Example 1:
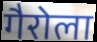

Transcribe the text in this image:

गैरोला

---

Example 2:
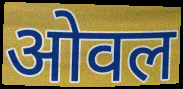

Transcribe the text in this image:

ओवल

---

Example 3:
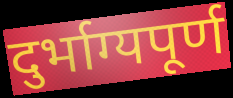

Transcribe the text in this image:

दुर्भाग्यपूर्ण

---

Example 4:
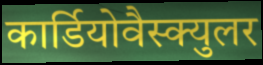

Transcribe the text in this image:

कार्डियोवैस्क्युलर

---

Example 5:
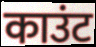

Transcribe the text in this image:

काउंट